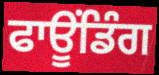
ਫਾਊਂਡਿੰਗ